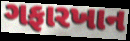
ગફારખાન